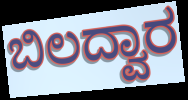
ಬಿಲದ್ವಾರ